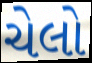
ચેલો